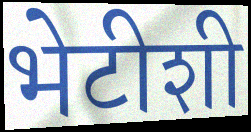
भेटीशी